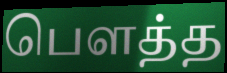
பெளத்த